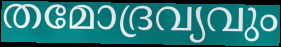
തമോദ്രവ്യവും